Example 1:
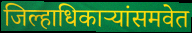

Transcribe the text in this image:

जिल्हाधिकाऱ्यांसमवेत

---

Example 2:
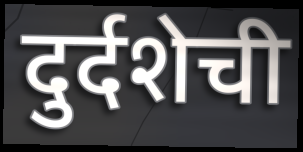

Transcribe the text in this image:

दुर्दशेची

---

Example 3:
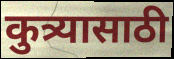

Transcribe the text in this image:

कुत्र्यासाठी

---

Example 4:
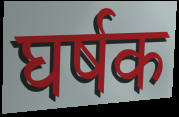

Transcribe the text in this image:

घर्षक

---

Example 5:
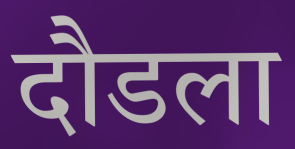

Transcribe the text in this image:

दौडला